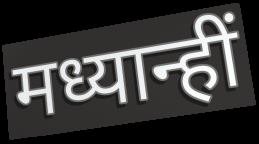
मध्यान्हीं